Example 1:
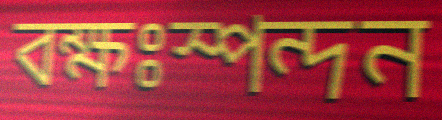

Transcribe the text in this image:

বক্ষঃস্পন্দন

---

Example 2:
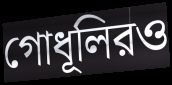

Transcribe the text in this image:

গোধূলিরও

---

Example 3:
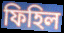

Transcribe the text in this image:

ফিহিল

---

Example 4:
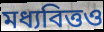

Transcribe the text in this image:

মধ্যবিত্তও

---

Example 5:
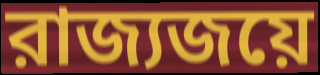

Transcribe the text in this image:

রাজ্যজয়ে